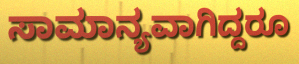
ಸಾಮಾನ್ಯವಾಗಿದ್ದರೂ